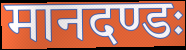
मानदण्डः